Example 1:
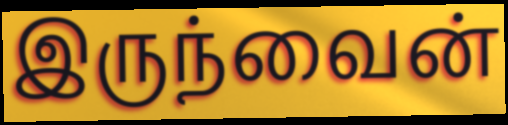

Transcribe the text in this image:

இருந்வைன்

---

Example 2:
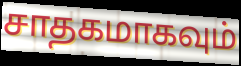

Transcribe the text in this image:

சாதகமாகவும்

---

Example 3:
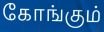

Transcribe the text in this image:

கோங்கும்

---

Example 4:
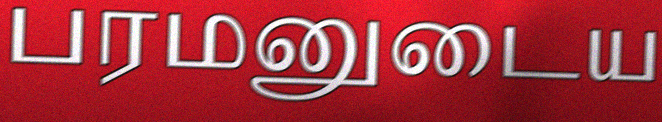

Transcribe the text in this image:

பரமனுடைய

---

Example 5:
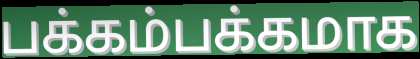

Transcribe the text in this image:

பக்கம்பக்கமாக